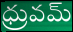
ధ్రువమ్